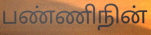
பண்ணிநின்